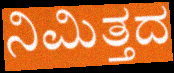
ನಿಮಿತ್ತದ